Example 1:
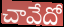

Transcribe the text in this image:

చావేదో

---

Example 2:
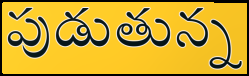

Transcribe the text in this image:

పుడుతున్న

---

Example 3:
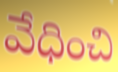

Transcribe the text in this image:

వేధించి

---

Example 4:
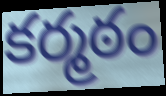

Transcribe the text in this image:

కర్మఠం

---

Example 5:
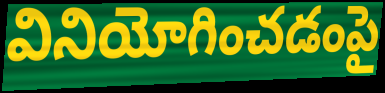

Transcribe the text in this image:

వినియోగించడంపై